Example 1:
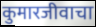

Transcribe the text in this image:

कुमारजीवाचा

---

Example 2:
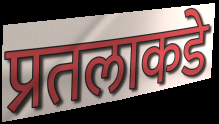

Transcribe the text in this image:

प्रतलाकडे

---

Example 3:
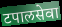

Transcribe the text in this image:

टपालसेवा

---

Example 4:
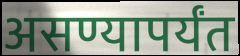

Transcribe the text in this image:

असण्यापर्यंत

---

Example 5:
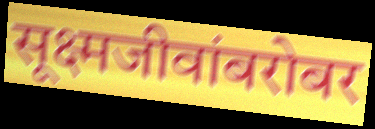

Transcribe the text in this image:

सूक्ष्मजीवांबरोबर